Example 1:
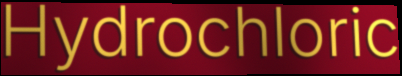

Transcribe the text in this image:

Hydrochloric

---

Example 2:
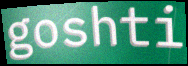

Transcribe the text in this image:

goshti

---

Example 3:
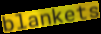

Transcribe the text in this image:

blankets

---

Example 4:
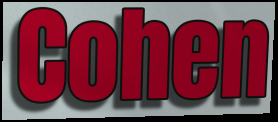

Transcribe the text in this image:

Cohen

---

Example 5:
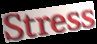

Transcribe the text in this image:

Stress